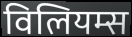
विलियम्‍स